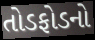
તોડફોડનો